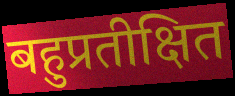
बहुप्रतीक्षित